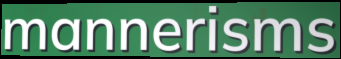
mannerisms